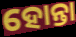
ହୋନ୍ତା